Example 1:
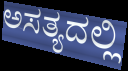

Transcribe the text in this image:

ಅಸತ್ಯದಲ್ಲಿ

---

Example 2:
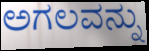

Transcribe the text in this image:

ಅಗಲವನ್ನು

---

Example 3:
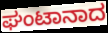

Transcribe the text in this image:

ಘಂಟಾನಾದ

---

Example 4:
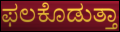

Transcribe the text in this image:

ಫಲಕೊಡುತ್ತಾ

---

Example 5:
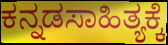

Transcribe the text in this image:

ಕನ್ನಡಸಾಹಿತ್ಯಕ್ಕೆ